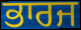
ਭਾਰਜ